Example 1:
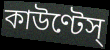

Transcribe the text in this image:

কাউণ্টেস্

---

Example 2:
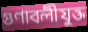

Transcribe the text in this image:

গুণাবলীযুক্ত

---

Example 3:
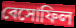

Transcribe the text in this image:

বেসোফিল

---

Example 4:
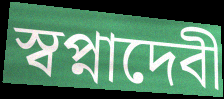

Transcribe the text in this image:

স্বপ্নাদেবী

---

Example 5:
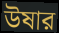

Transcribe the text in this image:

উষার